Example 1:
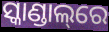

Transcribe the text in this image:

ସ୍କାଣ୍ଡାଲ୍‌ରେ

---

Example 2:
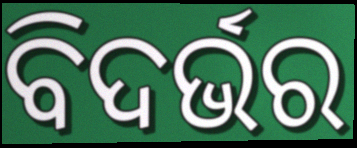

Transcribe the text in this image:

ବିଦର୍ଭର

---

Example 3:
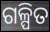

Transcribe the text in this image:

ଗଳ୍ପିତ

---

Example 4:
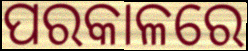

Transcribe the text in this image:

ପରକାଳରେ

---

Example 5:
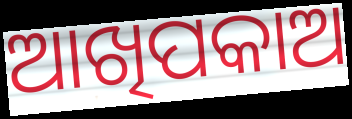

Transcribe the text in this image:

ଆଖିପକାଅ